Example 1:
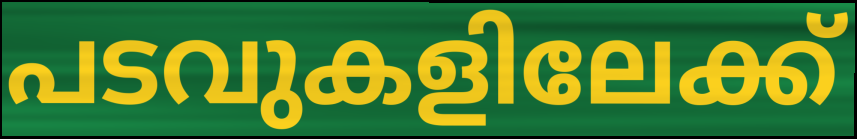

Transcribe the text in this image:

പടവുകളിലേക്ക്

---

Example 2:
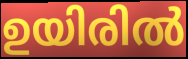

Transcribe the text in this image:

ഉയിരിൽ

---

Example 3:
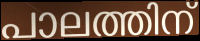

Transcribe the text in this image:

പാലത്തിന്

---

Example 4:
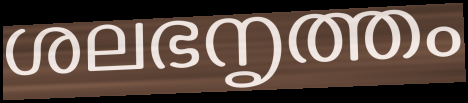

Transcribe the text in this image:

ശലഭനൃത്തം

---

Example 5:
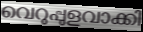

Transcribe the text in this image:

വെറുപ്പുളവാക്കി